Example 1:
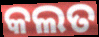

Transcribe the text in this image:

କଲତ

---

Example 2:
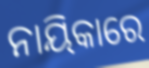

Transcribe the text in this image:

ନାୟିକାରେ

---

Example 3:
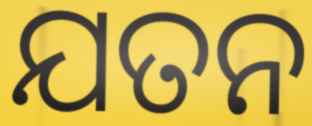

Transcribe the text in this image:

ଯତନ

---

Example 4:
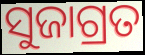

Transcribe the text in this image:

ସୁଜାଗ୍ରତ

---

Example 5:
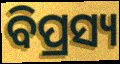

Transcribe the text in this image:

ବିପ୍ରସ୍ୟ